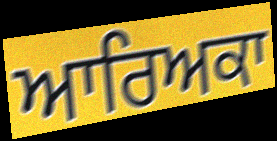
ਆਰਿਅਕਾ